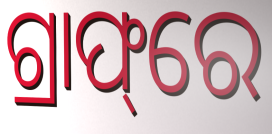
ଗ୍ରାଫ୍‌ରେ